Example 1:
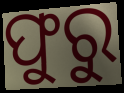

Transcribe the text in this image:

ଫୁରୁ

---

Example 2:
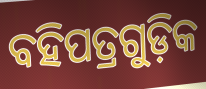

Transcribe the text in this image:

ବହିପତ୍ରଗୁଡ଼ିକ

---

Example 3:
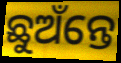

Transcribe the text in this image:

ଛୁଅଁନ୍ତେ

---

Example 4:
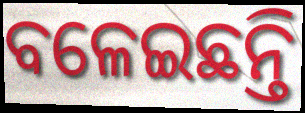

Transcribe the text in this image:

ବଳେଇଛନ୍ତି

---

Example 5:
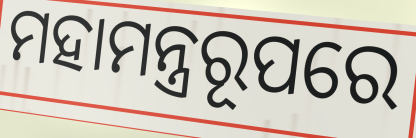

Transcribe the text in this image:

ମହାମନ୍ତ୍ରରୂପରେ